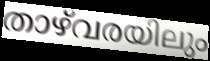
താഴ്‌വരയിലും